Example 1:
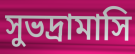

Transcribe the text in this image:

সুভদ্রামাসি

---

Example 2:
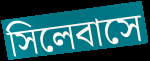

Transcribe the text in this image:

সিলেবাসে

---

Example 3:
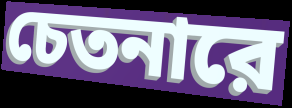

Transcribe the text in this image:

চেতনারে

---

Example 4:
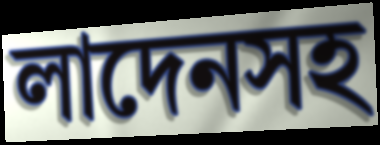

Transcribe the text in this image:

লাদেনসহ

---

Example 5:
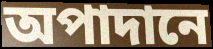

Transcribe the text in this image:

অপাদানে